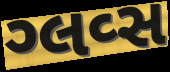
ગ્લવ્સ